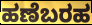
ಹಣೆಬರಹ